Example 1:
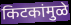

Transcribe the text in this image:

किटकांमुळे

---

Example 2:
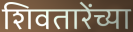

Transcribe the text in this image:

शिवतारेंच्या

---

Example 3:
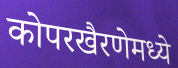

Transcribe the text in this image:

कोपरखैरणेमध्ये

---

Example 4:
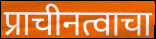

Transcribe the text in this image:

प्राचीनत्वाचा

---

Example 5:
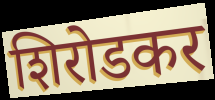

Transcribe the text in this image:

शिरोडकर